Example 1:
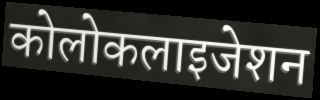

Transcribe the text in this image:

कोलोकलाइजेशन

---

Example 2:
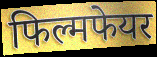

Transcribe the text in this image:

फिल्मफेयर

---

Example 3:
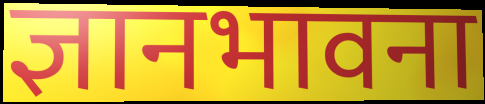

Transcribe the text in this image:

ज्ञानभावना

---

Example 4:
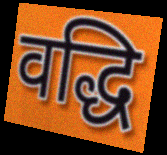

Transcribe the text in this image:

वद्धि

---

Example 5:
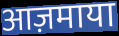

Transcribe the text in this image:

आज़माया